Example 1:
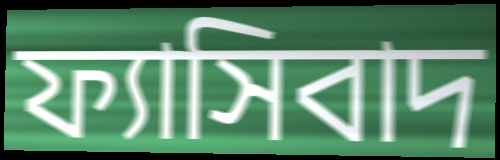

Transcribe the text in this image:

ফ্যাসিবাদ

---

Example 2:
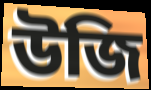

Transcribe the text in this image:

উজি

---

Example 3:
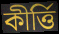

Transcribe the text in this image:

কীৰ্ত্তি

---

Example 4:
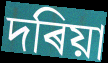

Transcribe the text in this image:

দৰিয়া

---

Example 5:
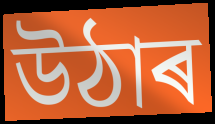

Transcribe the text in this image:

উঠাৰ